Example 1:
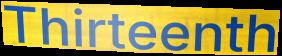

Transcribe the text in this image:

Thirteenth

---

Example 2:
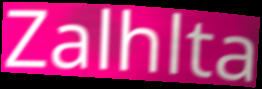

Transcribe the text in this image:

Zalhlta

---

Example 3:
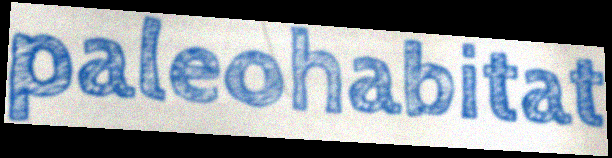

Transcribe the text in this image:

paleohabitat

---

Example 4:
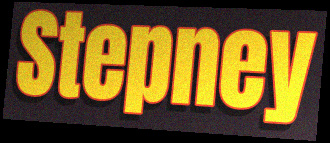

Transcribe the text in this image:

Stepney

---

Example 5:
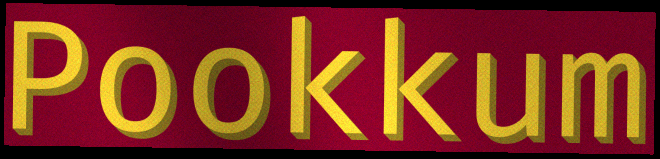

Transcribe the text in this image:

Pookkum